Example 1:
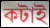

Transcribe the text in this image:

কটাই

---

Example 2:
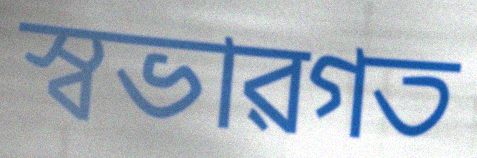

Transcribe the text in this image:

স্বভাৱগত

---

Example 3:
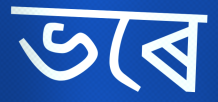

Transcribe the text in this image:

ভৰে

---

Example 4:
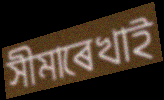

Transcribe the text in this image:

সীমাৰেখাই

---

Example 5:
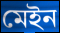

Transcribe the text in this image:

মেইন